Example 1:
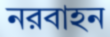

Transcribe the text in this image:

নরবাহন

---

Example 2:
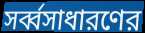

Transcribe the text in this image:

সর্ব্বসাধারণের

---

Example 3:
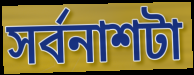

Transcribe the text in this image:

সর্বনাশটা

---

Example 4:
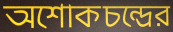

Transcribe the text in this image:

অশোকচন্দ্রের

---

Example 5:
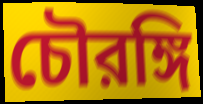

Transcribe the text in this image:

চৌরঙ্গি